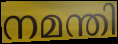
നമന്തി